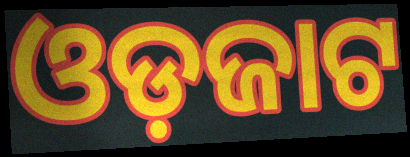
ଓଡ଼ଜାଟ